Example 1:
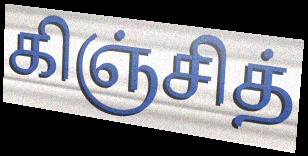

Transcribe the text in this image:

கிஞ்சித்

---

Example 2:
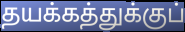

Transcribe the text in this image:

தயக்கத்துக்குப்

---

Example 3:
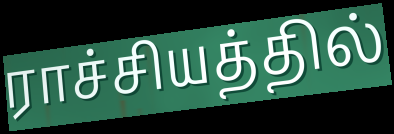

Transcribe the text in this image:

ராச்சியத்தில்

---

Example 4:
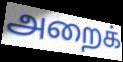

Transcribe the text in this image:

அறைக்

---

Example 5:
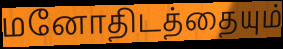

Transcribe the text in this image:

மனோதிடத்தையும்